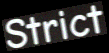
Strict